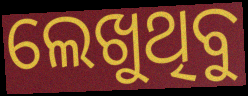
ଲେଖୁଥିବୁ